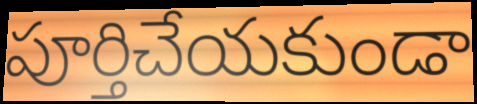
పూర్తిచేయకుండా